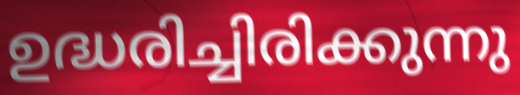
ഉദ്ധരിച്ചിരിക്കുന്നു